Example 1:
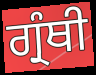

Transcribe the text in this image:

ਗ੍ਰੰਥੀ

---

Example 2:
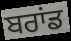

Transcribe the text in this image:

ਬਰਾਂਡ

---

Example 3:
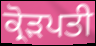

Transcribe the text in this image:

ਕ੍ਰੋੜਪਤੀ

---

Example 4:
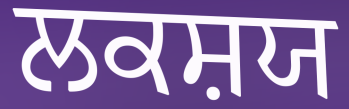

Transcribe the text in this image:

ਲਕਸ਼ਯ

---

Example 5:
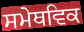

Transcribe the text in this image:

ਸਮੇਥਵਿਕ